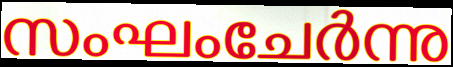
സംഘംചേർന്നു